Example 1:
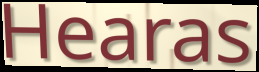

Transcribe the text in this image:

Hearas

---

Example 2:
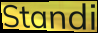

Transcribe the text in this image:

Standi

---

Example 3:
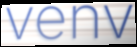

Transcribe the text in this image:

venv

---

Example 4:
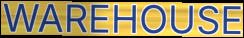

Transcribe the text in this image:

WAREHOUSE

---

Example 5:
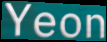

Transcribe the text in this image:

Yeon